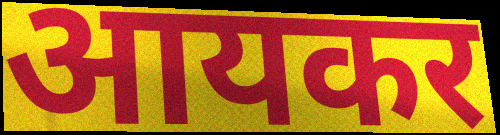
आयकर